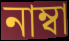
নাম্বা